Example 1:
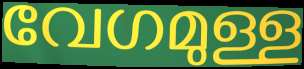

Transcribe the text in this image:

വേഗമുള്ള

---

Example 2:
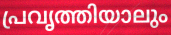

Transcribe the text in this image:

പ്രവൃത്തിയാലും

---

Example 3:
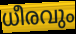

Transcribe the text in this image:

ധീരവും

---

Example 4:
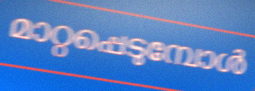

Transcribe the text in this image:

മാറ്റപ്പെടുമ്പോൾ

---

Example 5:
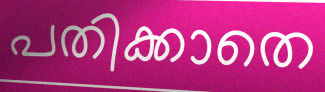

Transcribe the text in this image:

പതിക്കാതെ